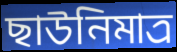
ছাউনিমাত্র